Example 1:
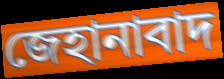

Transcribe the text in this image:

জেহানাবাদ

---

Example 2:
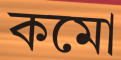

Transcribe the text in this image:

কমো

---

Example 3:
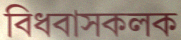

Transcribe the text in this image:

বিধবাসকলক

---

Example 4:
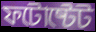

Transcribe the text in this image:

ফটোষ্টেট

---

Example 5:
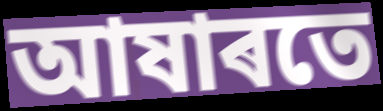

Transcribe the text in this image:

আষাৰতে